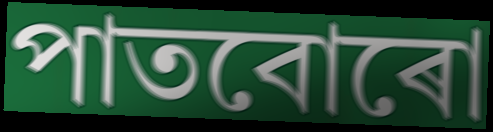
পাতবোৰো